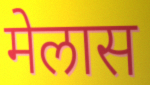
मेलास